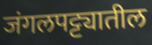
जंगलपट्ट्यातील